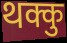
थक्कु